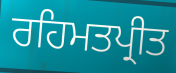
ਰਹਿਮਤਪ੍ਰੀਤ